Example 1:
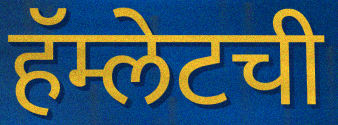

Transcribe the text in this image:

हॅम्लेटची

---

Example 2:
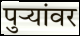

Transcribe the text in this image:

पुऱ्यांवर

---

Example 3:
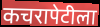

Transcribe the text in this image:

कचरापेटीला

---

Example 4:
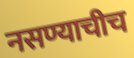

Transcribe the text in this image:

नसण्याचीच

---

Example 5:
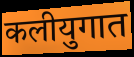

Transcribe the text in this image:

कलीयुगात